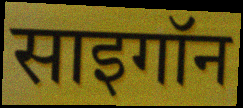
साइगॉन